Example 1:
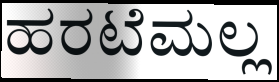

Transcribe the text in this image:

ಹರಟೆಮಲ್ಲ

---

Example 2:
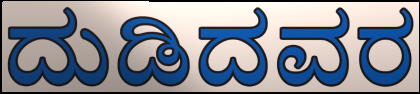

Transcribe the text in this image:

ದುಡಿದವರ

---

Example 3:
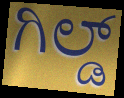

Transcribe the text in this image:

ಗಿಲ್ಡ್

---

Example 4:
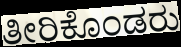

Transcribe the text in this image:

ತೀರಿಕೊಂಡರು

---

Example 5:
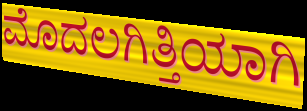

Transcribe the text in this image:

ಮೊದಲಗಿತ್ತಿಯಾಗಿ